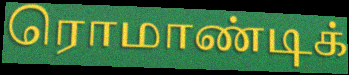
ரொமாண்டிக்